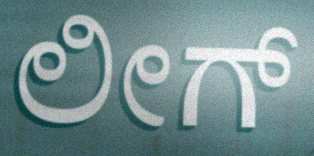
ಲೀಗ್